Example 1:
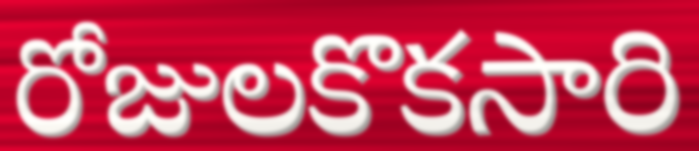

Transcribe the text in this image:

రోజులకొకసారి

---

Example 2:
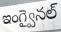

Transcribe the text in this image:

ఇంగ్వైనల్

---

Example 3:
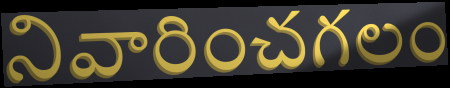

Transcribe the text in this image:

నివారించగలం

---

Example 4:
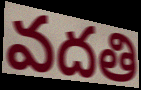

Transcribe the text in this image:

వదతి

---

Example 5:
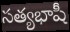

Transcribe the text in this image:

సత్యభాషీ